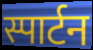
स्पार्टन